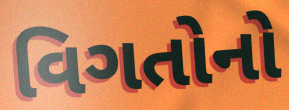
વિગતોનો